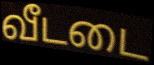
வீடடை